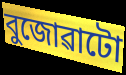
বুজোৱাটো